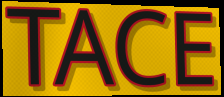
TACE